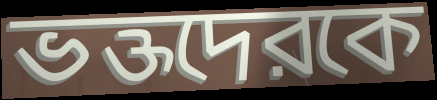
ভক্তদেরকে